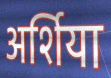
अर्शिया